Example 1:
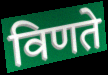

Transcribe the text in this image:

विणते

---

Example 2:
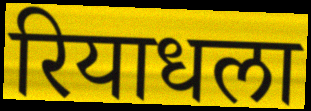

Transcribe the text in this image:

रियाधला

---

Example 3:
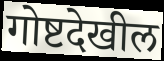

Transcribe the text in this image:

गोष्टदेखील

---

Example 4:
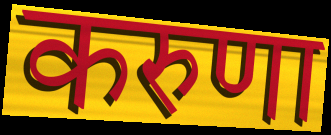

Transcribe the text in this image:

करुणा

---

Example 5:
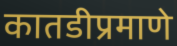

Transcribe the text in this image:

कातडीप्रमाणे